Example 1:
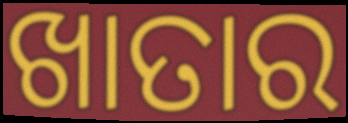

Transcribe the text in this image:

ଖାତାର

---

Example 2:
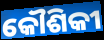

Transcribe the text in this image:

କୌଶିକୀ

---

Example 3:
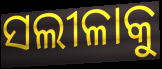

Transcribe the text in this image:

ସଲୀଳାକୁ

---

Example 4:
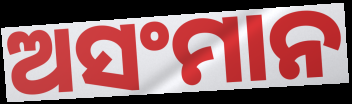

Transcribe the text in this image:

ଅସଂମାନ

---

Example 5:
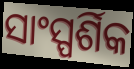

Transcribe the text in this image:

ସାଂସ୍ପର୍ଶିକ